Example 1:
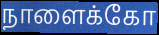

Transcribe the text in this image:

நாளைக்கோ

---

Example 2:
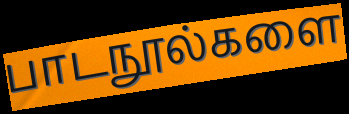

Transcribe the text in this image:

பாடநூல்களை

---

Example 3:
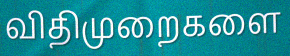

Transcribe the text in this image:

விதிமுறைகளை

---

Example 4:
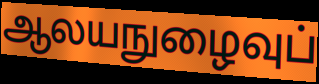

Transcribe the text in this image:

ஆலயநுழைவுப்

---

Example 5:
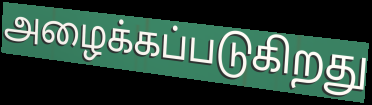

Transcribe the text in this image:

அழைக்கப்படுகிறது